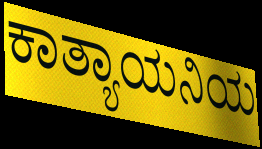
ಕಾತ್ಯಾಯನಿಯ